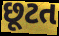
છૂટત